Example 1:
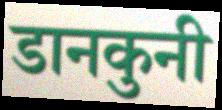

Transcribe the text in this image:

डानकुनी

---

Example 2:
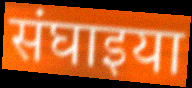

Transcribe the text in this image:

संघाइया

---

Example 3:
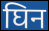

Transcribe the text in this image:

घिन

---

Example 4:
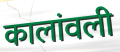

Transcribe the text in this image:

कालांवली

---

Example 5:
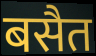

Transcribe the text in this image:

बसैत